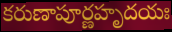
కరుణాపూర్ణహృదయః